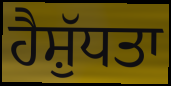
ਹੈਸ਼ੁੱਧਤਾ